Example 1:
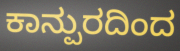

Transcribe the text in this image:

ಕಾನ್ಪುರದಿಂದ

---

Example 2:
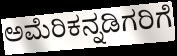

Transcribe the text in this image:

ಅಮೆರಿಕನ್ನಡಿಗರಿಗೆ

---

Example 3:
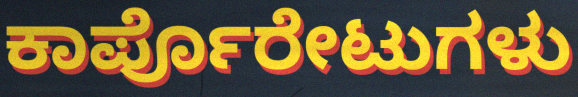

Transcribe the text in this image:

ಕಾರ್ಪೊರೇಟುಗಳು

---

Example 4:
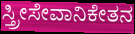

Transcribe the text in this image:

ಸ್ತ್ರೀಸೇವಾನಿಕೇತನ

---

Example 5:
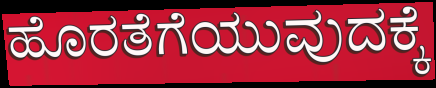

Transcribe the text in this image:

ಹೊರತೆಗೆಯುವುದಕ್ಕೆ